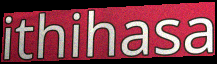
ithihasa